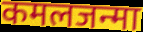
कमलजन्मा